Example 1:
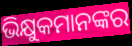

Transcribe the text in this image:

ଭିକ୍ଷୁକମାନଙ୍କର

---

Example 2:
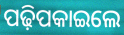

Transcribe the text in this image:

ପଢ଼ିପକାଇଲେ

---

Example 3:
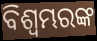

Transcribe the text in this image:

ବିଶ୍ୱମ୍ଭରଙ୍କ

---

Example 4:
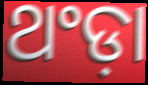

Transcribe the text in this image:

ଥଂଡ଼ା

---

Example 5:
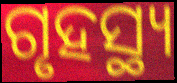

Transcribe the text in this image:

ଗୃହସ୍ଥ୍ୟ